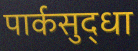
पार्कसुद्धा